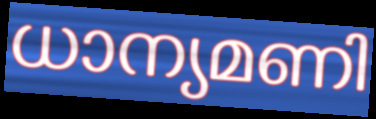
ധാന്യമണി